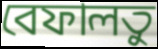
বেফালতু